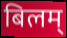
बिलम्